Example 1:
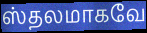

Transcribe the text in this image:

ஸ்தலமாகவே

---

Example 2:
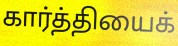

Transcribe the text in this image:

கார்த்தியைக்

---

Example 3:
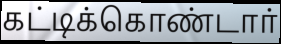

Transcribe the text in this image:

கட்டிக்கொண்டார்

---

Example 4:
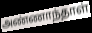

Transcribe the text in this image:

அண்ணாந்தாள்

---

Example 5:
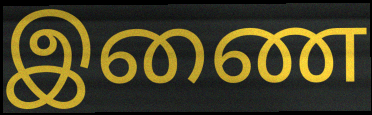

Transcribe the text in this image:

இணை